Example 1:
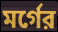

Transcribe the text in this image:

মর্গের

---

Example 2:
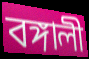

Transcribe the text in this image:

বঙ্গালী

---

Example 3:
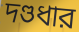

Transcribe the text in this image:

দণ্ডধার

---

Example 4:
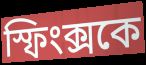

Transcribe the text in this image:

স্ফিংক্সকে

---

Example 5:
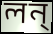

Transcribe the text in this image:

লন্